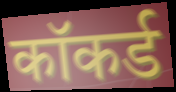
कॉकर्ड